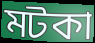
মটকা